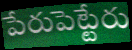
పేరుపెట్టేరు